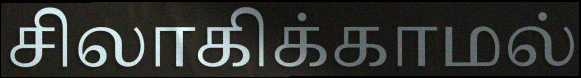
சிலாகிக்காமல்